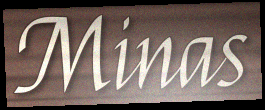
Minas